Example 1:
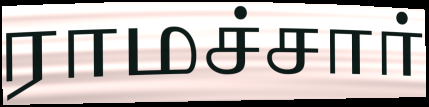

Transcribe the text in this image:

ராமச்சார்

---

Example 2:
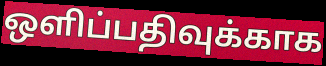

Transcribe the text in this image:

ஒளிப்பதிவுக்காக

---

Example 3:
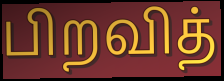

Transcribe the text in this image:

பிறவித்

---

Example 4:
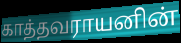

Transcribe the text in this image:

காத்தவராயனின்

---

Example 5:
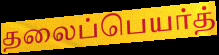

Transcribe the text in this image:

தலைப்பெயர்த்